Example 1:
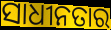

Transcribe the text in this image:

ସାଧୀନତାର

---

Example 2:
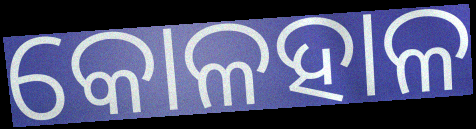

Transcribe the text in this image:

କୋଳହାଳ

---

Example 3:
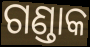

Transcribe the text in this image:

ଗଣ୍ଡାକ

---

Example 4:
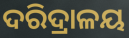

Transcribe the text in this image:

ଦରିଦ୍ରାଳୟ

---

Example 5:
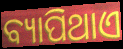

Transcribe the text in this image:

ବ୍ୟାପିଥାଏ